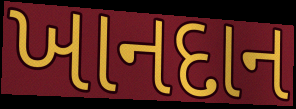
ખાનદાન